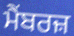
ਮੈਂਬਰਜ਼